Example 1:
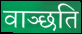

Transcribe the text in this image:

वाञ्छति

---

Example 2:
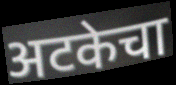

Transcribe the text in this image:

अटकेचा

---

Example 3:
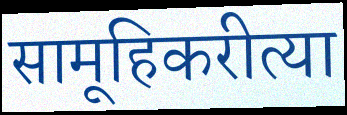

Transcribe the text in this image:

सामूहिकरीत्या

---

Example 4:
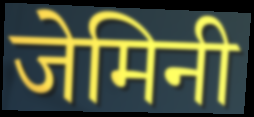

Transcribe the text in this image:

जेमिनी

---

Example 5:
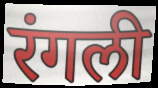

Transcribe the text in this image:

रंगली